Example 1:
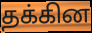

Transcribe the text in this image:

தக்கின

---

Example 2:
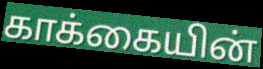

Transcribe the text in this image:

காக்கையின்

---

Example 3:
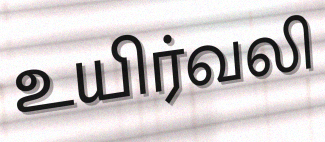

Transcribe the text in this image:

உயிர்வலி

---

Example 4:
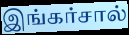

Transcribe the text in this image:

இங்கர்சால்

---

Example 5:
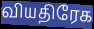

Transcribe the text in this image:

வியதிரேக